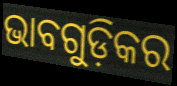
ଭାବଗୁଡ଼ିକର